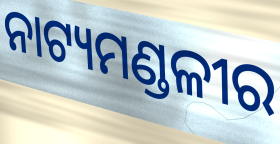
ନାଟ୍ୟମଣ୍ଡଳୀର